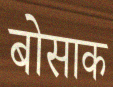
बोसाक